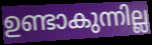
ഉണ്ടാകുന്നില്ല